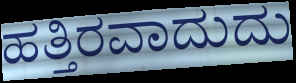
ಹತ್ತಿರವಾದುದು